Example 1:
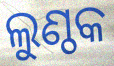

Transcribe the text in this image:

ଲୁଣ୍ଠକ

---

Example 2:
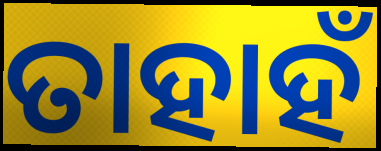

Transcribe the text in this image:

ତାହାହଁ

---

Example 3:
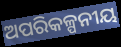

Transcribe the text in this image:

ଅପରିକଳ୍ପନୀୟ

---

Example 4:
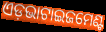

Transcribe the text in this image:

ଏଡ଼ଭାଟାଇଜମେଣ୍ଟ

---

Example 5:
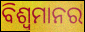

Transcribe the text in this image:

ବିଶ୍ୱମାନର